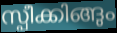
സ്പീക്കിങ്ങും